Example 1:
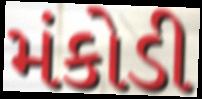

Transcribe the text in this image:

મંકોડી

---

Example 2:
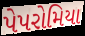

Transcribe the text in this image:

પેપરોમિયા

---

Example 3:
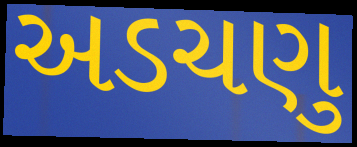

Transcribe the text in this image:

અડચણુ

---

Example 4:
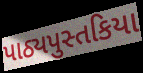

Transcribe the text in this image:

પાઠ્યપુસ્તકિયા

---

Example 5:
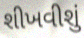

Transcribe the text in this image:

શીખવીશું